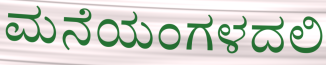
ಮನೆಯಂಗಳದಲಿ